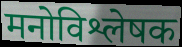
मनोविश्लेषक